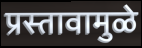
प्रस्तावामुळे